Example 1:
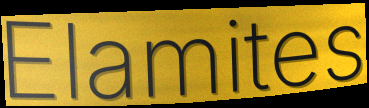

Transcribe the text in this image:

Elamites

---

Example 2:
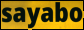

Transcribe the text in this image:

sayabo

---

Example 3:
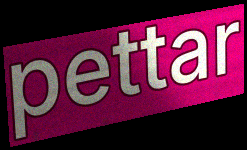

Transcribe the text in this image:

pettar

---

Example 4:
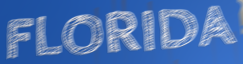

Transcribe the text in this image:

FLORIDA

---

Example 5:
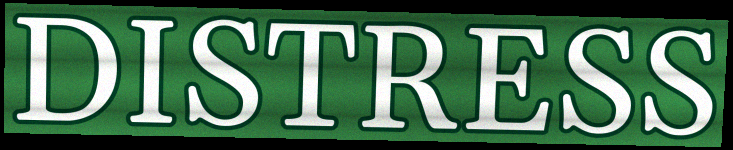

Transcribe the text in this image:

DISTRESS